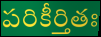
పరికీర్తితః